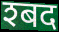
श्बद